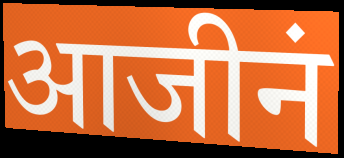
आजीनं